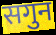
सगुन